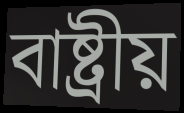
বাষ্ট্রীয়